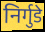
निर्गुडे